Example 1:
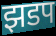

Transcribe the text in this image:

झडप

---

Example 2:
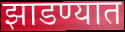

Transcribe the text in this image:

झाडण्यात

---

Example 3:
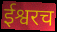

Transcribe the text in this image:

ईश्वरच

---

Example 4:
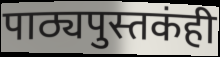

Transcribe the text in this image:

पाठ्यपुस्तकंही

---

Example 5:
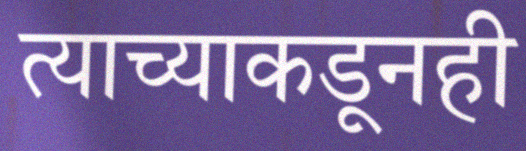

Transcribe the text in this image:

त्याच्याकडूनही